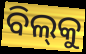
ବିଲ୍‌କୁ